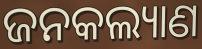
ଜନକଲ୍ୟାଣ